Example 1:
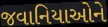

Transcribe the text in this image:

જવાનિયાઓને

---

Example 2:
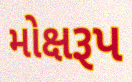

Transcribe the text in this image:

મોક્ષરૂપ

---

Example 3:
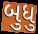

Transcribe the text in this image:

બુધુ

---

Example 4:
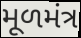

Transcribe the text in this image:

મૂળમંત્ર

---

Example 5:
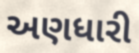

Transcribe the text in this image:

અણધારી